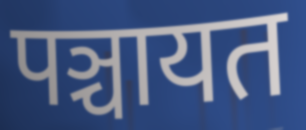
पञ्चायत